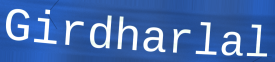
Girdharlal